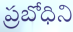
ప్రబోధిని